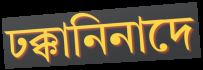
ঢক্কানিনাদে